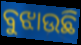
ବୁଝାଉଛି